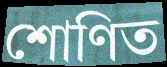
শোণিত